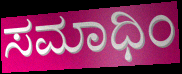
ಸಮಾಧಿಂ